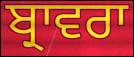
ਬ੍ਰਾਵਰਾ